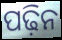
ପଢ଼ିନ